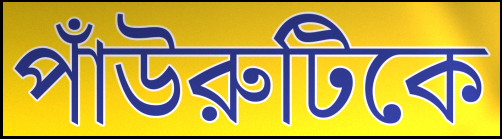
পাঁউরুটিকে